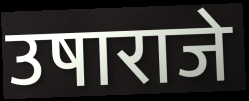
उषाराजे